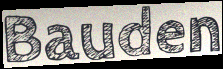
Bauden